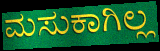
ಮಸುಕಾಗಿಲ್ಲ